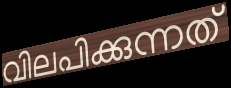
വിലപിക്കുന്നത്